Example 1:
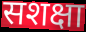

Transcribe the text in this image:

सशक्षा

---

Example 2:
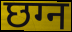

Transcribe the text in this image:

छग्न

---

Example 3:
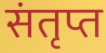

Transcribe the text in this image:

संतृप्त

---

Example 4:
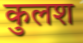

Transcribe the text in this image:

कुलश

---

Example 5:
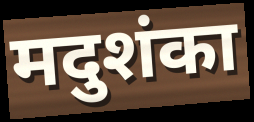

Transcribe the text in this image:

मदुशंका